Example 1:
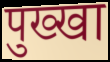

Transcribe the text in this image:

पुख्खा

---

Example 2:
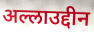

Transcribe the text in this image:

अल्लाउद्दीन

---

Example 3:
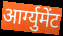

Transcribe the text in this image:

आर्ग्युमेंट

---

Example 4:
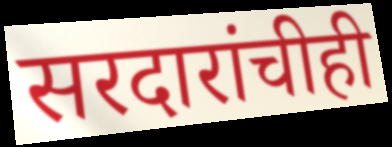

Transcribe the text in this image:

सरदारांचीही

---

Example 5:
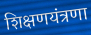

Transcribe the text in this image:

शिक्षणयंत्रणा